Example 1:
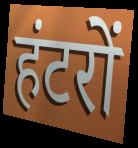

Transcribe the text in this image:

हंटरों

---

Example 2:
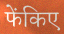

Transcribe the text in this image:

फेंकिए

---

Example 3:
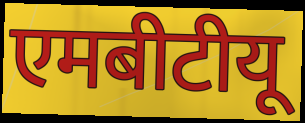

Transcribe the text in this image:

एमबीटीयू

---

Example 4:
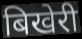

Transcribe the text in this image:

बिखेरी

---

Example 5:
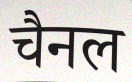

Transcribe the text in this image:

चैनल